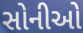
સોનીઓ